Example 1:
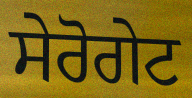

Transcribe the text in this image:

ਸੇਰੋਗੇਟ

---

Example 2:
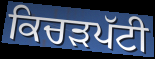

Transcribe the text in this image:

ਕਿਚੜਪੱਟੀ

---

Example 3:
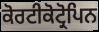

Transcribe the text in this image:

ਕੋਰਟੀਕੋਟ੍ਰੋਪਿਨ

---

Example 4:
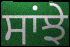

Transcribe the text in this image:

ਸਾਂਝੇ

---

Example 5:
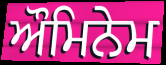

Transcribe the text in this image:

ਔਮਿਨੇਮ